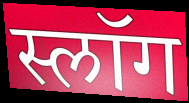
स्लॉग